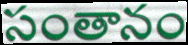
సంతానం